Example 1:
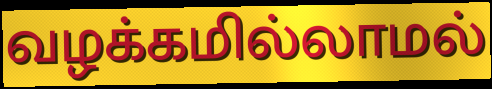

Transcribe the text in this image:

வழக்கமில்லாமல்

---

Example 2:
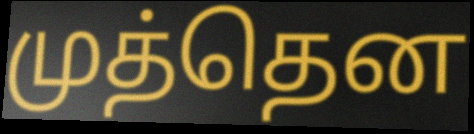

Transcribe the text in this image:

முத்தென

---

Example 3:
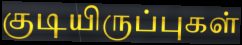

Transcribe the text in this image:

குடியிருப்புகள்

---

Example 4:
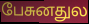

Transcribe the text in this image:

பேசுனதுல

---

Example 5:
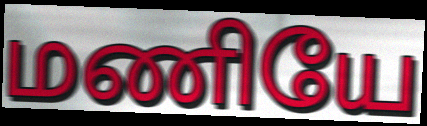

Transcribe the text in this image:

மணியே